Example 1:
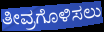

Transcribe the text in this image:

ತೀವ್ರಗೊಳಿಸಲು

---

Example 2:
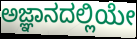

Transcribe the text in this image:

ಅಜ್ಞಾನದಲ್ಲಿಯೇ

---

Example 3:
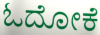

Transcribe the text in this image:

ಓದೋಕೆ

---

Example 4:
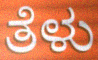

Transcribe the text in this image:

ತೆಳು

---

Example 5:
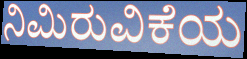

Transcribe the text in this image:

ನಿಮಿರುವಿಕೆಯ